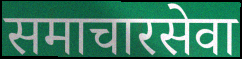
समाचारसेवा